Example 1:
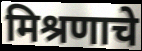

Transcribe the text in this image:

मिश्रणाचे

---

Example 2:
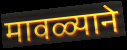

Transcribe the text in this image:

मावळ्याने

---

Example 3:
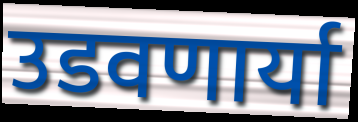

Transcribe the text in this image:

उडवणार्या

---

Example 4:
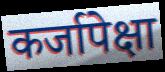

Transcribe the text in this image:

कर्जापेक्षा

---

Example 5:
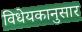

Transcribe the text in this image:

विधेयकानुसार